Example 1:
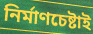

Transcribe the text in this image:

নির্মাণচেষ্টাই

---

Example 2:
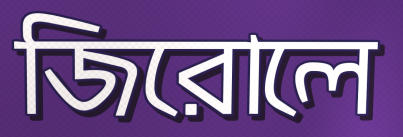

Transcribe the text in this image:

জিরোলে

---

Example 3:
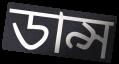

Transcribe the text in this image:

ডান্স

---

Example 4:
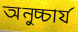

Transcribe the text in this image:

অনুচ্চার্য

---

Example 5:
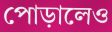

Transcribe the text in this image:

পোড়ালেও